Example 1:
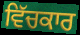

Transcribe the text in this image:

ਵਿੱਚਕਾਰ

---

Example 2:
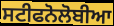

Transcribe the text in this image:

ਸਟੀਫਨੋਲੋਬੀਆ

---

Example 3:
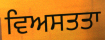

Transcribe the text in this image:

ਵਿਅਸਤਤਾ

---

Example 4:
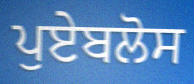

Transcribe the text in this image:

ਪੁਏਬਲੋਸ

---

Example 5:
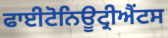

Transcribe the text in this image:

ਫਾਈਟੋਨਿਊਟ੍ਰੀਐਂਟਸ